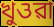
খুওৱা